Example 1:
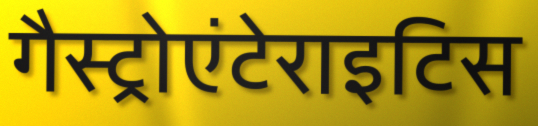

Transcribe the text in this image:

गैस्ट्रोएंटेराइटिस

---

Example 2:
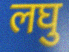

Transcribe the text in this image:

लघु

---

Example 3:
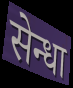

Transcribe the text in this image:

सेन्धा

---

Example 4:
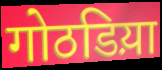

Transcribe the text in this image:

गोठडिय़ा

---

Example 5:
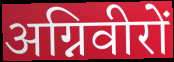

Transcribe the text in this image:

अग्निवीरों